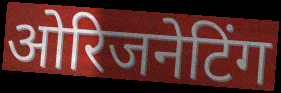
ओरिजनेटिंग